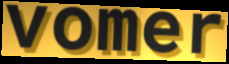
vomer